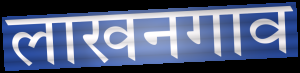
लाखनगाव